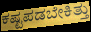
ಕಷ್ಟಪಡಬೇಕಿತ್ತು